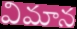
విమాన